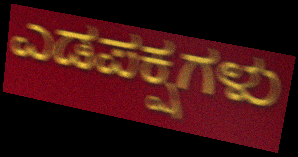
ಎಡಪಕ್ಷಗಳು